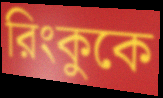
রিংকুকে